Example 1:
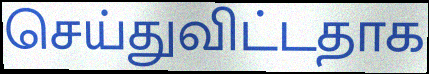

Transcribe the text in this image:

செய்துவிட்டதாக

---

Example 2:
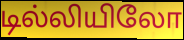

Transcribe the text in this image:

டில்லியிலோ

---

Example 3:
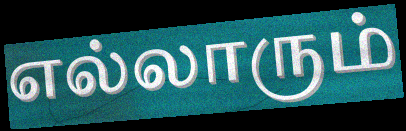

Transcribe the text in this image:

எல்லாரும்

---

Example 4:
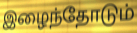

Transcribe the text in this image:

இழைந்தோடும்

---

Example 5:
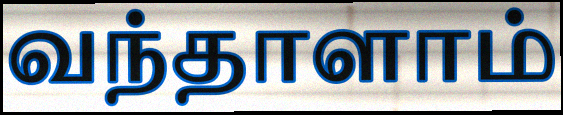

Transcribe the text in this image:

வந்தாளாம்